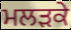
ਮਲੜਕੇ